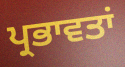
ਪ੍ਰਭਾਵਤਾਂ